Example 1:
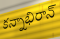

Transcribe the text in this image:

కన్నాభిరాన్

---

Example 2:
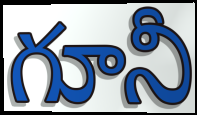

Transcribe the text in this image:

గూనీ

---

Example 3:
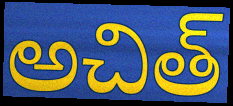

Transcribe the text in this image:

అచిత్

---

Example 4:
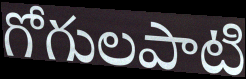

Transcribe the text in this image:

గోగులపాటి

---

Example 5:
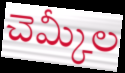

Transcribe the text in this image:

చెమ్కీల